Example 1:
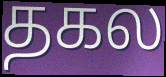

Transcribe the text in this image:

தகல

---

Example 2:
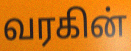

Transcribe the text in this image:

வரகின்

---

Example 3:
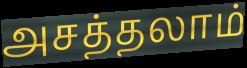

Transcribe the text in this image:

அசத்தலாம்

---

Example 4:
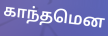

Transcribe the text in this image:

காந்தமென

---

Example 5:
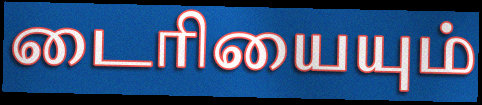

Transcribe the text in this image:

டைரியையும்